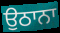
ਉਠਾਨਾ